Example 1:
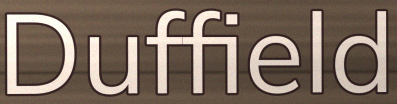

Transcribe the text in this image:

Duffield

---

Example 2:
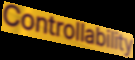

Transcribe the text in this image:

Controllability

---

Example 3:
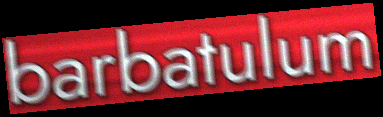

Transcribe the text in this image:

barbatulum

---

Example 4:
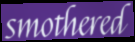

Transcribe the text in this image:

smothered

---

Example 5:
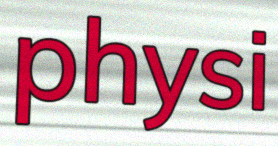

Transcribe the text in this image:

physi